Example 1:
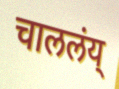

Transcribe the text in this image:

चाललंय्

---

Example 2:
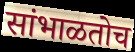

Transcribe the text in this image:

सांभाळतोच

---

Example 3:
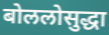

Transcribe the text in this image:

बोललोसुद्धा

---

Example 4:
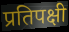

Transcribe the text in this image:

प्रतिपक्षी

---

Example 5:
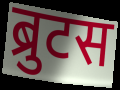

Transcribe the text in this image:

ब्रुटस